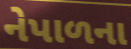
નેપાળના